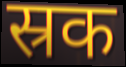
स्रक